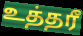
உத்தரீ